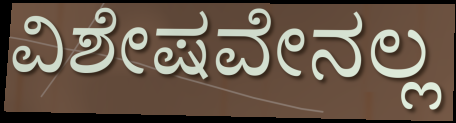
ವಿಶೇಷವೇನಲ್ಲ